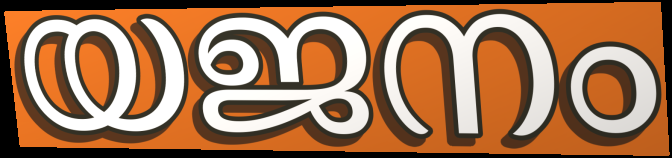
യജനം